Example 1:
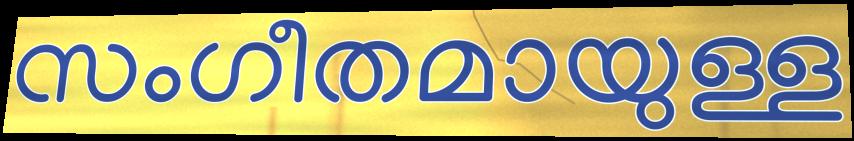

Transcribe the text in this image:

സംഗീതമായുള്ള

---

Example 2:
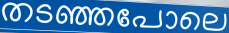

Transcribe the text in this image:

തടഞ്ഞപോലെ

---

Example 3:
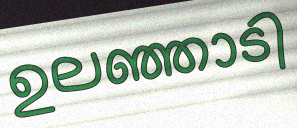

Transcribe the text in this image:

ഉലഞ്ഞാടി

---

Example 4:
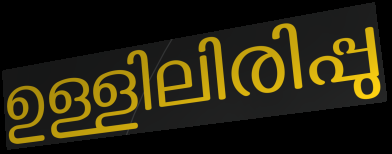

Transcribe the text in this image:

ഉള്ളിലിരിപ്പു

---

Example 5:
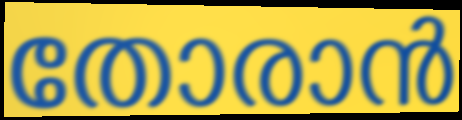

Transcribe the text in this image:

തോരാൻ